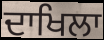
ਦਾਖਿਲਾ